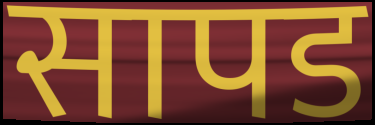
सापड